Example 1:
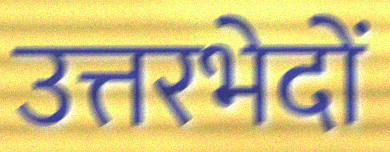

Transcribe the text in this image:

उत्तरभेदों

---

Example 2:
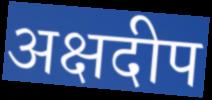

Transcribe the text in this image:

अक्षदीप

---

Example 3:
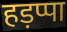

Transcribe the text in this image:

हड़प्पा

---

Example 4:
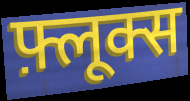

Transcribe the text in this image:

फ़्लूक्स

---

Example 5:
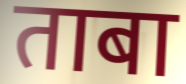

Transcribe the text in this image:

ताबा